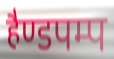
हैण्डपम्प